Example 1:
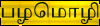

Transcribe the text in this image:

பழமொழி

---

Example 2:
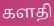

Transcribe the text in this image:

களதி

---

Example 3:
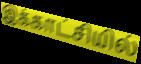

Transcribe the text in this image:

இக்காட்சியில்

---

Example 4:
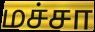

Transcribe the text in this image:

மச்சா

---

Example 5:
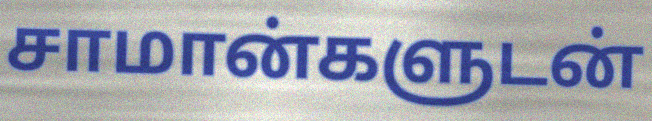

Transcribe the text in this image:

சாமான்களுடன்